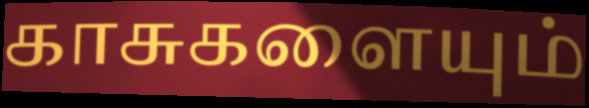
காசுகளையும்